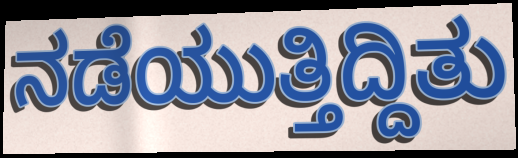
ನಡೆಯುತ್ತಿದ್ದಿತು